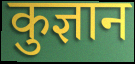
कुज्ञान